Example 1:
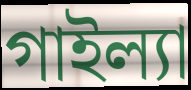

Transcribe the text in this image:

গাইল্যা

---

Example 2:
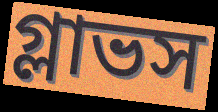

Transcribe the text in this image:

গ্লাভস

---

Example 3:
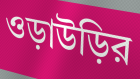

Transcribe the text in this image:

ওড়াউড়ির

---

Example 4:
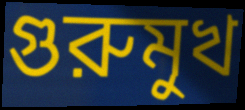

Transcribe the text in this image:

গুরুমুখ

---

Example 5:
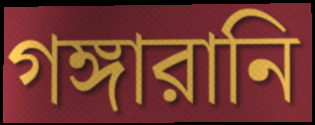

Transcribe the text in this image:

গঙ্গারানি